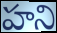
హని